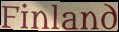
Finland